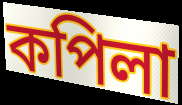
কপিলা